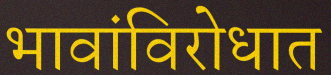
भावांविरोधात